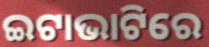
ଇଟାଭାଟିରେ